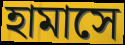
হামাসে